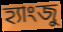
হ্যাংজু